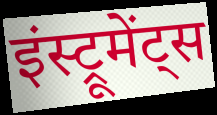
इंस्‍ट्रूमेंट्स